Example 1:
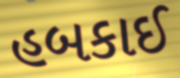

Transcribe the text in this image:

હબકાઈ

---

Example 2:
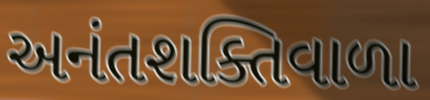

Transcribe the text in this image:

અનંતશક્તિવાળા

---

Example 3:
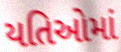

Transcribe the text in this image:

યતિઓમાં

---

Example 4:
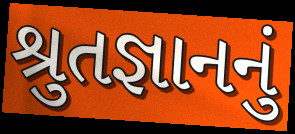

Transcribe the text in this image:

શ્રુતજ્ઞાનનું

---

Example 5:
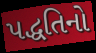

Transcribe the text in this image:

પદ્ધતિનો